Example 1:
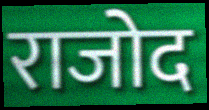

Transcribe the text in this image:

राजोद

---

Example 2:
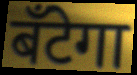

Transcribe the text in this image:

बँटेगा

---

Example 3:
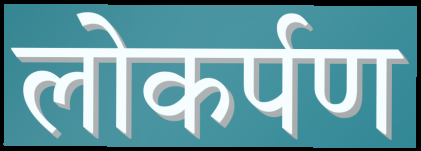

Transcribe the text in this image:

लोकर्पण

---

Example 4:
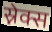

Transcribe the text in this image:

स्नेक्स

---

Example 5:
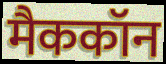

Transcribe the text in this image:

मैककॉन